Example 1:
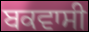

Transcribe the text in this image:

ਬਕਵਾਸੀ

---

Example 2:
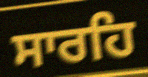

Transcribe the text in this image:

ਸਾਰਹਿ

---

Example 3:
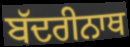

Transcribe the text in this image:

ਬੱਦਰੀਨਾਥ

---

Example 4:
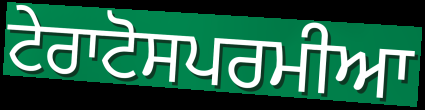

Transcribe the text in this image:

ਟੇਰਾਟੋਸਪਰਮੀਆ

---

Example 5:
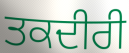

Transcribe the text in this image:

ਤਕਦੀਰੀ